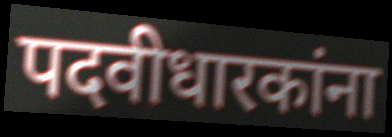
पदवीधारकांना